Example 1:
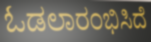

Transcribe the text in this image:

ಓಡಲಾರಂಭಿಸಿದೆ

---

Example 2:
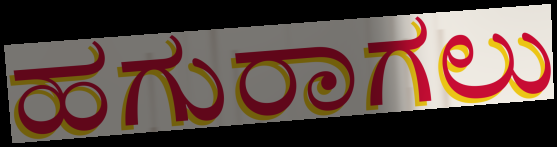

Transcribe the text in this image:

ಹಗುರಾಗಲು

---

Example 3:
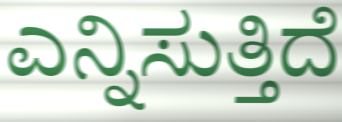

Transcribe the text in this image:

ಎನ್ನಿಸುತ್ತಿದೆ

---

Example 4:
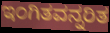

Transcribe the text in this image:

ಇಂಗಿತವನ್ನರಿತ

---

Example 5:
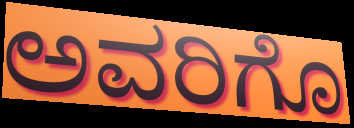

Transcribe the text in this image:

ಅವರಿಗೊ